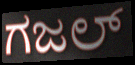
ಗಜಲ್